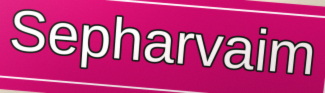
Sepharvaim